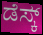
ಡೆಸ್ಕ್